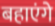
बहाएंगे